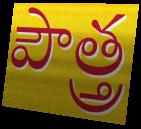
పౌత్త్ర